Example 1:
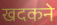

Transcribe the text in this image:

खदकने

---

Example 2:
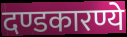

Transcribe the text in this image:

दण्डकारण्ये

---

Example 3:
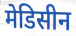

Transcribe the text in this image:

मेडिसीन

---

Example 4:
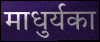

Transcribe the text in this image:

माधुर्यका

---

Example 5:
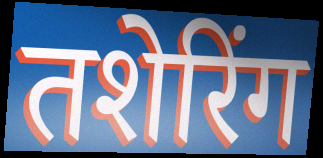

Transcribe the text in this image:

तशेरिंग